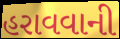
હરાવવાની